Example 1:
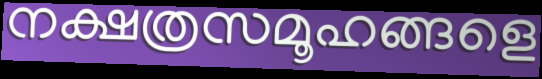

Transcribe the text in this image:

നക്ഷത്രസമൂഹങ്ങളെ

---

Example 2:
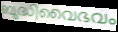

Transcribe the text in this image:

ബുദ്ധിവൈഭവം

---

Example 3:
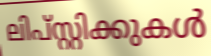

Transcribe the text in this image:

ലിപ്സ്റ്റിക്കുകൾ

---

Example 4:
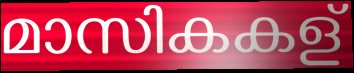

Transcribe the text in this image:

മാസികകള്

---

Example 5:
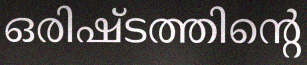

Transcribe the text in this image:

ഒരിഷ്ടത്തിന്റെ